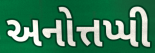
અનોત્તપ્પી